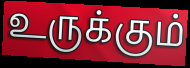
உருக்கும்